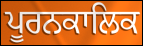
ਪੂਰਨਕਾਲਿਕ